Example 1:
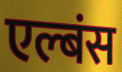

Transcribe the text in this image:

एल्बंस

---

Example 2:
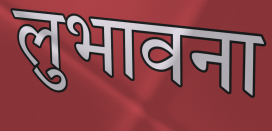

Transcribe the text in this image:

लुभावना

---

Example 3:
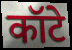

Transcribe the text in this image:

कॉटे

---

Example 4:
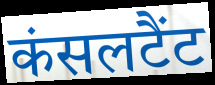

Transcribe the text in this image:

कंसलटैंट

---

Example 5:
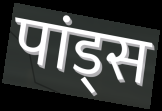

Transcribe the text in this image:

पांड्स